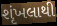
શૃંખલાથી